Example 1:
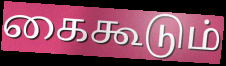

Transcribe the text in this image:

கைகூடும்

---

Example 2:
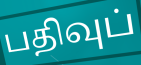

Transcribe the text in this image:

பதிவுப்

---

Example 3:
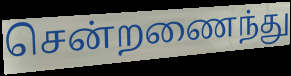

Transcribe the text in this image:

சென்றணைந்து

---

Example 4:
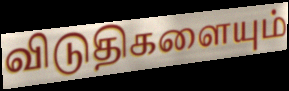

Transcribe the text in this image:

விடுதிகளையும்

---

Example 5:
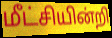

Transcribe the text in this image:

மீட்சியின்றி